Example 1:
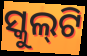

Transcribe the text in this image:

ସ୍କୁଲ୍‌ଟି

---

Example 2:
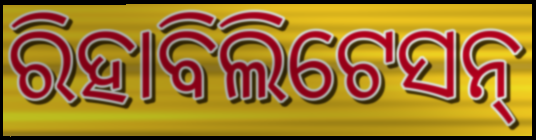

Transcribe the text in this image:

ରିହାବିଲିଟେସନ୍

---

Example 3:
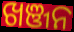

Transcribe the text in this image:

ଖଞ୍ଜନ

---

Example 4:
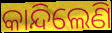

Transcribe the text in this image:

କାନ୍ଦିଲେଣି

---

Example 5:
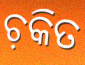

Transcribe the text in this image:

ଚ଼କିତ